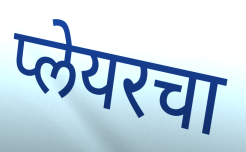
प्लेयरचा